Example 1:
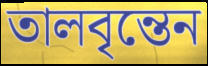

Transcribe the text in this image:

তালবৃন্তেন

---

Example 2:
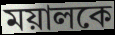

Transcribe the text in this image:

ময়ালকে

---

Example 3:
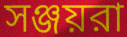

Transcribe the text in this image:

সঞ্জয়রা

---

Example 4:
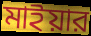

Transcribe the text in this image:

মাইয়ার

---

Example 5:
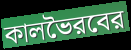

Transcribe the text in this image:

কালভৈরবের